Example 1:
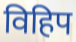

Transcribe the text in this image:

विहिप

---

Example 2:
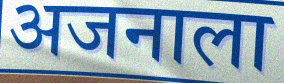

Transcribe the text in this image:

अजनाला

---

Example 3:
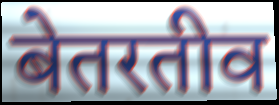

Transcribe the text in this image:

बेतरतीव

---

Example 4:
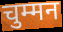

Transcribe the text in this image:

चुम्मन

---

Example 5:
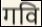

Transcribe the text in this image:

गवि